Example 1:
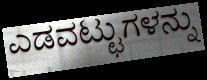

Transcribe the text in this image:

ಎಡವಟ್ಟುಗಳನ್ನು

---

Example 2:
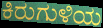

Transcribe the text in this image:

ಕಿರುಗುಳಿಯ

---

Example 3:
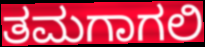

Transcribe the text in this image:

ತಮಗಾಗಲಿ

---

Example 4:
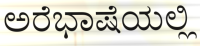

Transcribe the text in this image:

ಅರೆಭಾಷೆಯಲ್ಲಿ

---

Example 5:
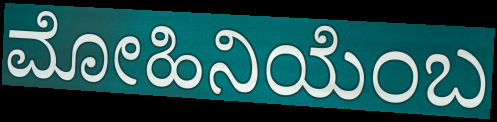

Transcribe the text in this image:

ಮೋಹಿನಿಯೆಂಬ